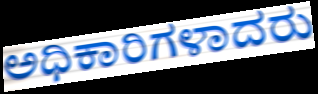
ಅಧಿಕಾರಿಗಳಾದರು